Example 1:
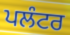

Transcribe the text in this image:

ਪਲੰਟਰ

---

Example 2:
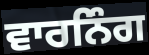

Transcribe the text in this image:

ਵਾਰਨਿੰਗ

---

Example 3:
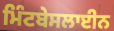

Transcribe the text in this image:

ਮਿੰਟਬੇਸਲਾਈਨ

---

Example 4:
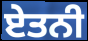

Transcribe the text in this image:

ਏਤਨੀ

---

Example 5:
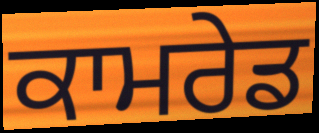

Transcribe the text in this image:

ਕਾਮਰੇਡ